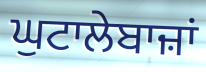
ਘੁਟਾਲੇਬਾਜ਼ਾਂ